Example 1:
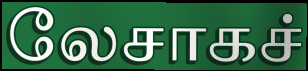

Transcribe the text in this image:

லேசாகச்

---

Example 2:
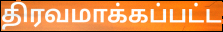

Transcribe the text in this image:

திரவமாக்கப்பட்ட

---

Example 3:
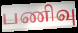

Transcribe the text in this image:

பணிவு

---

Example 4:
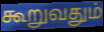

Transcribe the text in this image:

கூறுவதும்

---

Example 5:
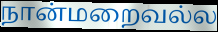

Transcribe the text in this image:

நான்மறைவல்ல